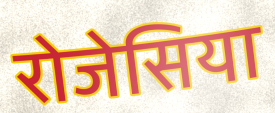
रोजेसिया